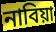
নাবিয়া